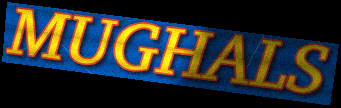
MUGHALS